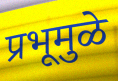
प्रभूमुळे